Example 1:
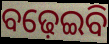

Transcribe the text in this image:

ବଢ଼େଇବି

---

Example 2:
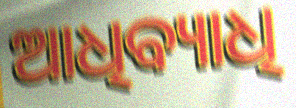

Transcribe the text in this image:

ଆଧିବ୍ୟାଧି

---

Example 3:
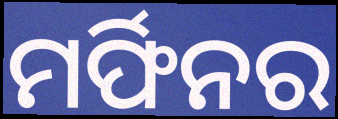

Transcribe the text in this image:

ମର୍ଫିନର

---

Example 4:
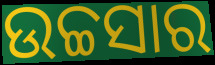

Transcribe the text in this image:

ଉଚ୍ଚସାର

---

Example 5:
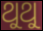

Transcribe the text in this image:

ଥୁଥୁ